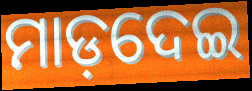
ମାଡ଼ଦେଇ